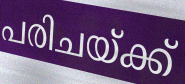
പരിചയ്ക്ക്